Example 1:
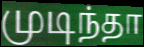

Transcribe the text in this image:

முடிந்தா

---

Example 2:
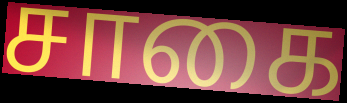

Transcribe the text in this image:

சாகை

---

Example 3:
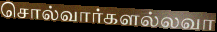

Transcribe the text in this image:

சொல்வார்களல்லவா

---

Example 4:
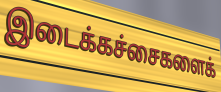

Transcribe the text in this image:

இடைக்கச்சைகளைக்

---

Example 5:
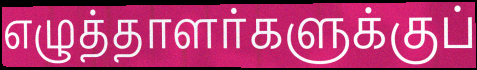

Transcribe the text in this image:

எழுத்தாளர்களுக்குப்